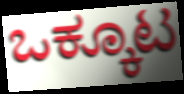
ಒಕ್ಕೂಟ